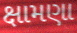
ક્ષામણા